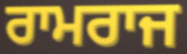
ਰਾਮਰਾਜ